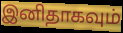
இனிதாகவும்